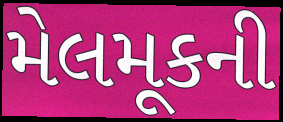
મેલમૂકની